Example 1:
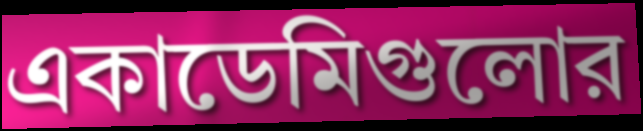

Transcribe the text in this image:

একাডেমিগুলোর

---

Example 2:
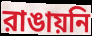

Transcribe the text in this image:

রাঙায়নি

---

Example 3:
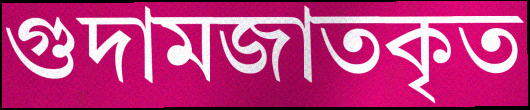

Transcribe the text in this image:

গুদামজাতকৃত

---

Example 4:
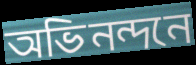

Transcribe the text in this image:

অভিনন্দনে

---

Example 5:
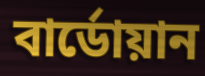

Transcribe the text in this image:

বার্ডোয়ান